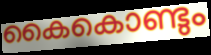
കൈകൊണ്ടും